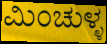
ಮಿಂಚುಳ್ಳ